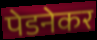
पेडनेकर